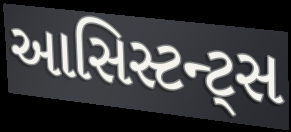
આસિસ્ટન્ટ્સ